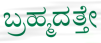
ಬ್ರಹ್ಮದತ್ತೇ